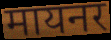
मायनर